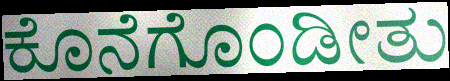
ಕೊನೆಗೊಂಡೀತು